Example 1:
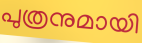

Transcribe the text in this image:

പുത്രനുമായി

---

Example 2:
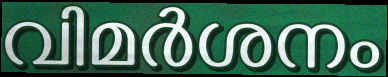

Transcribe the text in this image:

വിമർശനം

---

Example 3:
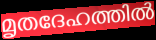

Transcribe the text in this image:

മൃതദേഹത്തിൽ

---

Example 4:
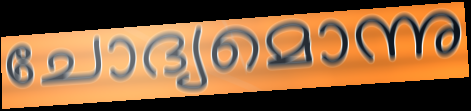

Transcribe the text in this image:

ചോദ്യമൊന്നു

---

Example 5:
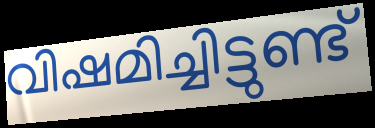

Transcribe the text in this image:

വിഷമിച്ചിട്ടുണ്ട്